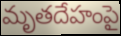
మృతదేహంపై